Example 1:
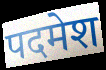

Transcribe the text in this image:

पदमेश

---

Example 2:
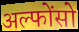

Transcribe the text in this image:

अल्फोंसो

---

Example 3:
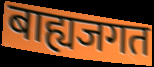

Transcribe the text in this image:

बाह्यजगत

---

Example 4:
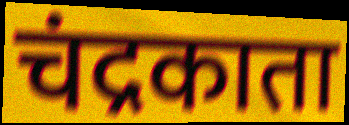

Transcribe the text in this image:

चंद्रकाता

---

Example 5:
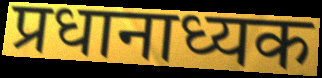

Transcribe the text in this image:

प्रधानाध्यक